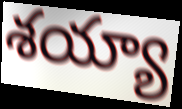
శయ్యా